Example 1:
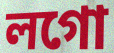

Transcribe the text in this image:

লগো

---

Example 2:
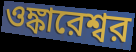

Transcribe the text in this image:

ওঙ্কারেশ্বর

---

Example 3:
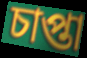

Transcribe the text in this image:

চাপ্তা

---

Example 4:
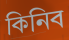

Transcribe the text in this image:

কিনিব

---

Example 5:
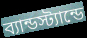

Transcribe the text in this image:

ব্যান্ডস্ট্যান্ডে